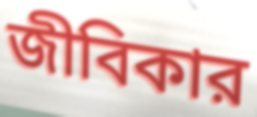
জীবিকার